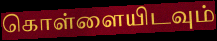
கொள்ளையிடவும்